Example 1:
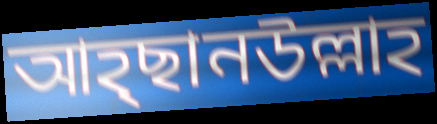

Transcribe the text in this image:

আহ্ছানউল্লাহ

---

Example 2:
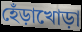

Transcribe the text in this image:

হেঁড়াখোড়া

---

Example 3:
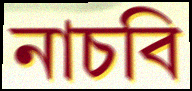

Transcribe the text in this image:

নাচবি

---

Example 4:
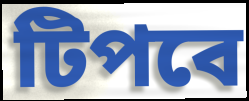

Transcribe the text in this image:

টিপবে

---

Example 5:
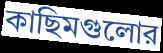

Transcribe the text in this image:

কাছিমগুলোর